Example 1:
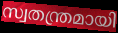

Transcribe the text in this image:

സ്വതന്ത്രമായി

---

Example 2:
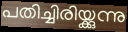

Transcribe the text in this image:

പതിച്ചിരിയ്ക്കുന്നു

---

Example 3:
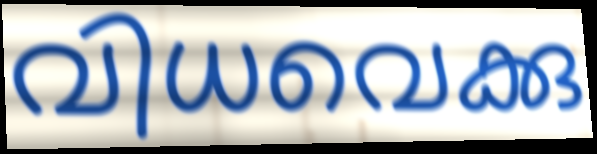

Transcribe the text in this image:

വിധവെക്കു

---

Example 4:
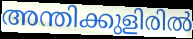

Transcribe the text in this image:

അന്തിക്കുളിരിൽ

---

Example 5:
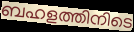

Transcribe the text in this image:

ബഹളത്തിനിടെ